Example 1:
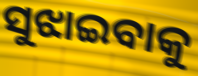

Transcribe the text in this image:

ସୁଝାଇବାକୁ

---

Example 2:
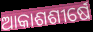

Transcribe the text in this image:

ଆକାଶଶୀର୍ଷେ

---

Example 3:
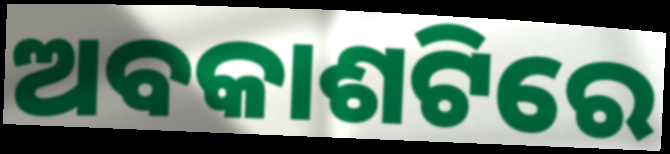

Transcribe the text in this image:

ଅବକାଶଟିରେ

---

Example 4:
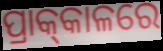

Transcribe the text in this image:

ପ୍ରାକ୍‌କାଳରେ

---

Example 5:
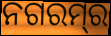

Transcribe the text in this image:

ନଗରମ୍‌ର